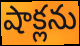
షాక్లను